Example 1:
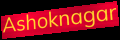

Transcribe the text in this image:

Ashoknagar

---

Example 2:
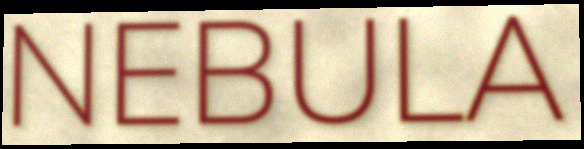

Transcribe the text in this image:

NEBULA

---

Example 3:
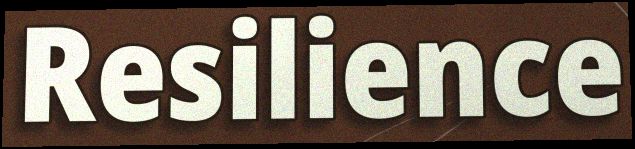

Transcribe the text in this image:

Resilience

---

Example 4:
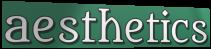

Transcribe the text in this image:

aesthetics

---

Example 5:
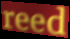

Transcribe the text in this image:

reed